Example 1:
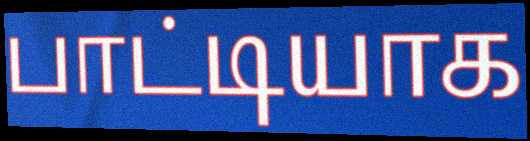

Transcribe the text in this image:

பாட்டியாக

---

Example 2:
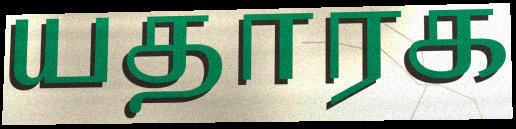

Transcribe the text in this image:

யதாரக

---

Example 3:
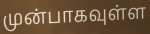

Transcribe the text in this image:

முன்பாகவுள்ள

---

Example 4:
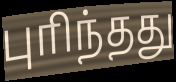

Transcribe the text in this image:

புரிந்தது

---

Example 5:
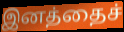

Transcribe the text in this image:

இனத்தைச்